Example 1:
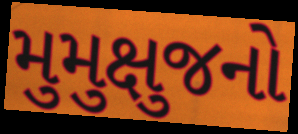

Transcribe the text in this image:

મુમુક્ષુજનો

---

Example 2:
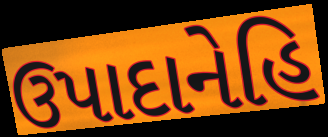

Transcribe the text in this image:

ઉપાદાનેહિ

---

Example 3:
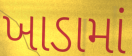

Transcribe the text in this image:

ખાડામાં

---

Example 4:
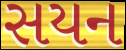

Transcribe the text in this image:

સયન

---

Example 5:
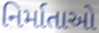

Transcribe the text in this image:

નિર્માતાઓ